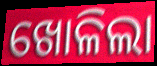
ଖୋଳିଲା